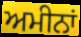
ਅਮੀਨਾਂ